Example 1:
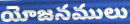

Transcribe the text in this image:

యోజనములు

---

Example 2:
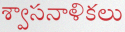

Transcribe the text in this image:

శ్వాసనాళికలు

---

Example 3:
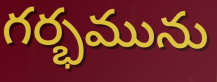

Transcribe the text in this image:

గర్భమును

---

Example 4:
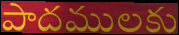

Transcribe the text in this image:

పాదములకు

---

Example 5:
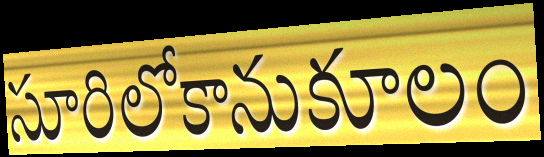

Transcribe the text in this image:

సూరిలోకానుకూలం